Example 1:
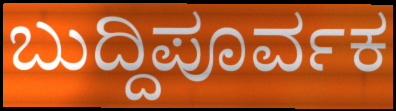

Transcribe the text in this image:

ಬುದ್ದಿಪೂರ್ವಕ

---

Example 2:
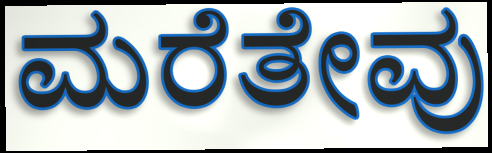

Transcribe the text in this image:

ಮರೆತೇವು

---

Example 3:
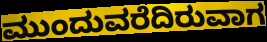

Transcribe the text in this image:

ಮುಂದುವರೆದಿರುವಾಗ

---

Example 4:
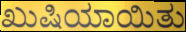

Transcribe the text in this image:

ಖುಷಿಯಾಯಿತು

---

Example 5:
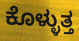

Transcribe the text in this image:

ಕೊಳ್ಳುತ್ತ